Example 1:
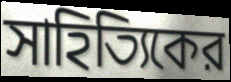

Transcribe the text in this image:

সাহিত্যিকের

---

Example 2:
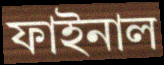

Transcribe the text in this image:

ফাইনাল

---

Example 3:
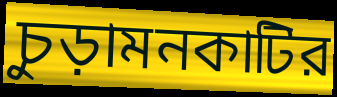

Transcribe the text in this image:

চুড়ামনকাটির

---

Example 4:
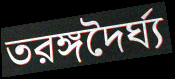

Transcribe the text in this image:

তরঙ্গদৈর্ঘ্য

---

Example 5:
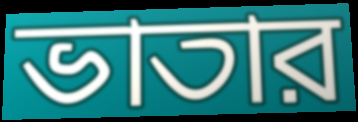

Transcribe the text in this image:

ভাতার